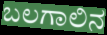
ಬಲಗಾಲಿನ